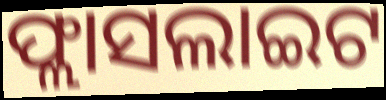
ଫ୍ଲାସଲାଇଟ